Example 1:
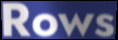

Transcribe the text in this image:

Rows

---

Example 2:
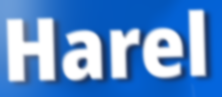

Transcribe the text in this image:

Harel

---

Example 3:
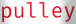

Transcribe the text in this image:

pulley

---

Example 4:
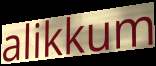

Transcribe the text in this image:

alikkum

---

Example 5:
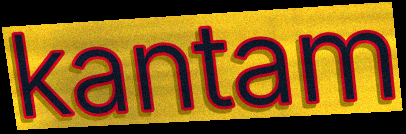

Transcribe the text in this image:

kantam